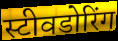
स्टीवडोरिंग